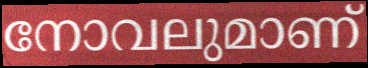
നോവലുമാണ്